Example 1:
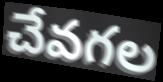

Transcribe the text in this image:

చేవగల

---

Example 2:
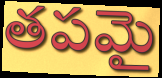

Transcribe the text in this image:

తపమై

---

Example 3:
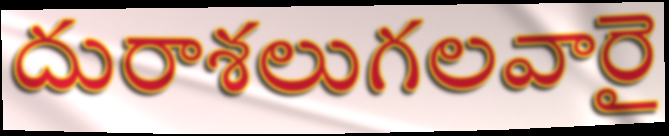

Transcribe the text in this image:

దురాశలుగలవారై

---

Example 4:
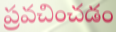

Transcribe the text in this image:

ప్రవచించడం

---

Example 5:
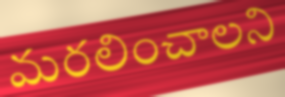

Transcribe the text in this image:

మరలించాలని